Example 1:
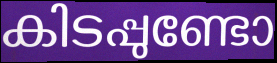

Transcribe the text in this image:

കിടപ്പുണ്ടോ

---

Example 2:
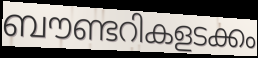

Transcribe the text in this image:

ബൗണ്ടറികളടക്കം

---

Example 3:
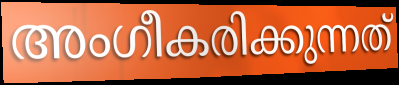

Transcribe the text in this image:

അംഗീകരിക്കുന്നത്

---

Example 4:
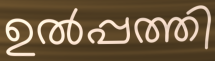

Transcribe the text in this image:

ഉൽപ്പത്തി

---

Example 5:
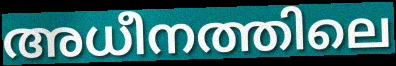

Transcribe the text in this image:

അധീനത്തിലെ